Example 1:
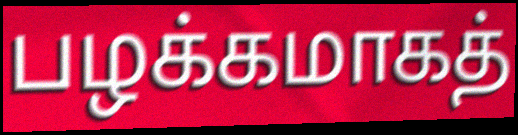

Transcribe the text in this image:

பழக்கமாகத்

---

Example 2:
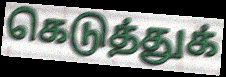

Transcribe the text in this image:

கெடுத்துக்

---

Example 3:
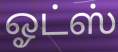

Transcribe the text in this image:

ஓட்ஸ்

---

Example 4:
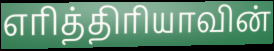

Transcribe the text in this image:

எரித்திரியாவின்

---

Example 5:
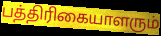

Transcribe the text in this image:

பத்திரிகையாளரும்